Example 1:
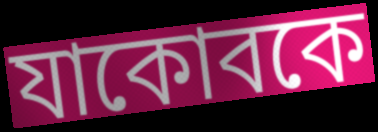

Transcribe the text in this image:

যাকোবকে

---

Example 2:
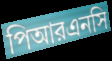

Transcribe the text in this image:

পিআরএনসি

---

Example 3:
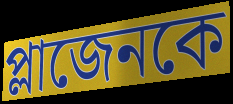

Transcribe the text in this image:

প্লাজেনকে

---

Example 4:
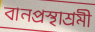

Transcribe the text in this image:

বানপ্রস্থাশ্রমী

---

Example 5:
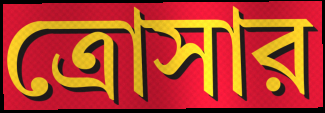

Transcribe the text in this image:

ত্রোসার